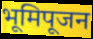
भूमिपूजन